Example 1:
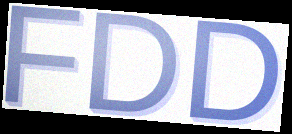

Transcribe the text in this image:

FDD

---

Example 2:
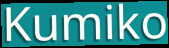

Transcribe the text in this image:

Kumiko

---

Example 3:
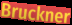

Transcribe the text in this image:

Bruckner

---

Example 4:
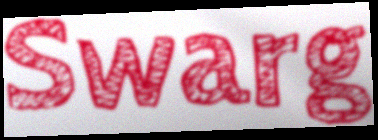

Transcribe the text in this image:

Swarg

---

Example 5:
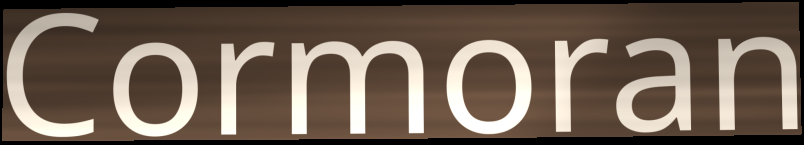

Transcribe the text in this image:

Cormoran